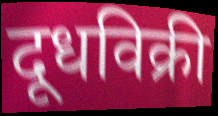
दूधविक्री